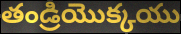
తండ్రియొక్కయు